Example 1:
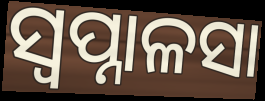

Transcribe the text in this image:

ସ୍ୱପ୍ନାଳସା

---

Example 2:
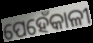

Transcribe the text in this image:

ପେହେଁକାଳୀ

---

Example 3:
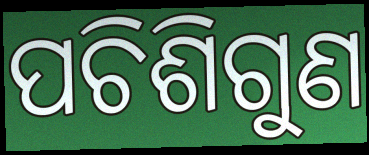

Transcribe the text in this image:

ପଚିଶିଗୁଣ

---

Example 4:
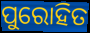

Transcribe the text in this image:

ପୁରୋହିତ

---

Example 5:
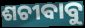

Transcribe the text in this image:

ଶଚୀବାବୁ